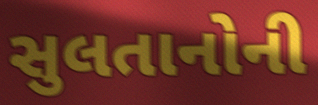
સુલતાનોની